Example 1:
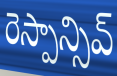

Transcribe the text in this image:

రెస్పాన్సివ్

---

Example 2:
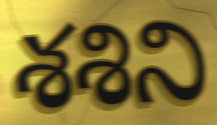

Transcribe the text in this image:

శశిని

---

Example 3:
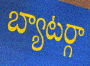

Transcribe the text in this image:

బ్యాటర్గా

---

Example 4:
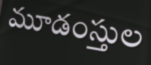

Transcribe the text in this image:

మూడంస్తుల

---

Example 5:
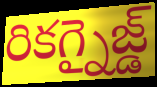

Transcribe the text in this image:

రికగ్నైజ్డ్